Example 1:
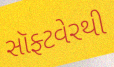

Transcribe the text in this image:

સૉફ્ટવેરથી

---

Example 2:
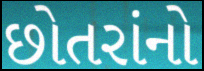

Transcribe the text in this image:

છોતરાંનો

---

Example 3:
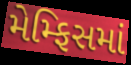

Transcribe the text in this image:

મેમ્ફિસમાં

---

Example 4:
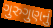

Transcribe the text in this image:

ગુરુગુણનું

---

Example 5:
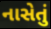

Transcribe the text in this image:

નાસેતું